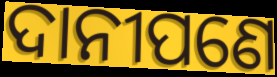
ଦାନୀପଣେ